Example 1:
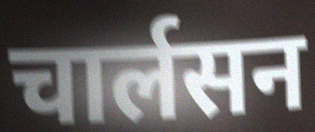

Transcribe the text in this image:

चार्लसन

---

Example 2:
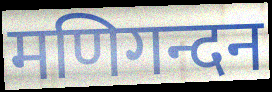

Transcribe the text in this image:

मणिगन्दन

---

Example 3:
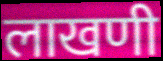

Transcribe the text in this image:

लाखणी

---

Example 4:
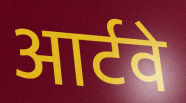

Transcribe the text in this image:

आर्टवे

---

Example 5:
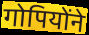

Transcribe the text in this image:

गोपियोंने